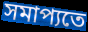
সমাপ্যতে